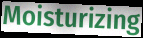
Moisturizing